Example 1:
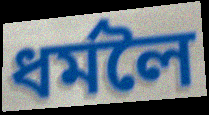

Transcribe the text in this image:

ধৰ্মলৈ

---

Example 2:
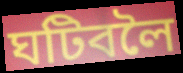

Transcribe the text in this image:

ঘটিবলৈ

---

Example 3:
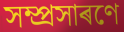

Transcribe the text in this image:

সম্প্ৰসাৰণে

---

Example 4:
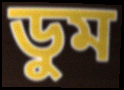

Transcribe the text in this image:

ডুম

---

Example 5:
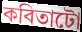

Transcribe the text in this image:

কবিতাটো